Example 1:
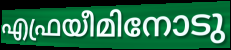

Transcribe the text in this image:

എഫ്രയീമിനോടു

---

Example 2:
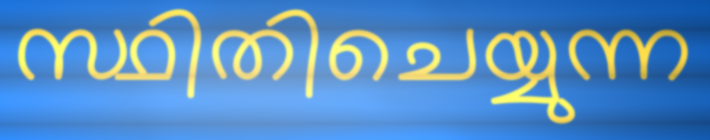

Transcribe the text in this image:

സ്ഥിതിചെയ്യുന്ന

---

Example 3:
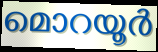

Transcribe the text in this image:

മൊറയൂർ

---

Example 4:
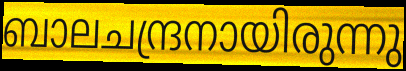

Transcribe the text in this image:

ബാലചന്ദ്രനായിരുന്നു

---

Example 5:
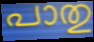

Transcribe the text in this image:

പാതു